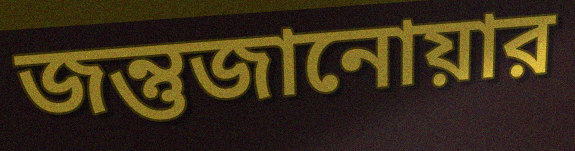
জন্তুজানোয়ার